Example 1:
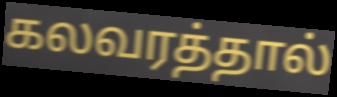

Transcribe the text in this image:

கலவரத்தால்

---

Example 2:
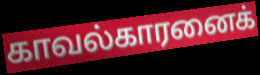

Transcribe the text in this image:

காவல்காரனைக்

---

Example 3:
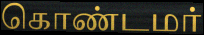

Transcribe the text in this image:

கொண்டமர்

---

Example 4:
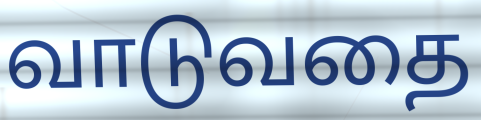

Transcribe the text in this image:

வாடுவதை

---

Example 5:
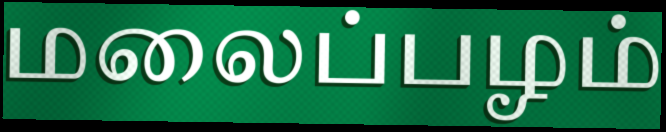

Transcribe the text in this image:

மலைப்பழம்